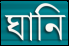
ঘানি